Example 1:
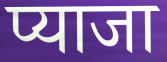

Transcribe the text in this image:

प्याजा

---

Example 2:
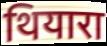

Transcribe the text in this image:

थियारा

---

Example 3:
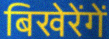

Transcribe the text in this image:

बिखेरेंगें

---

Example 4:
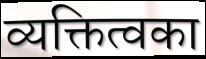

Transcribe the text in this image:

व्यक्तित्वका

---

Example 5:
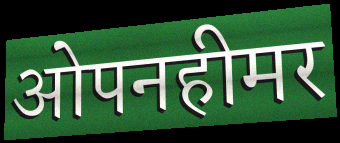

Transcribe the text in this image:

ओपनहीमर